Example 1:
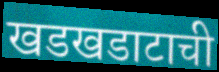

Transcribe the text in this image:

खडखडाटाची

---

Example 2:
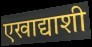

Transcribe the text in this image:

एखाद्याशी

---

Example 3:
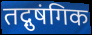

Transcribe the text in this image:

तद्नुषंगिक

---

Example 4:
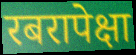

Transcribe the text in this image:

रबरापेक्षा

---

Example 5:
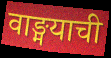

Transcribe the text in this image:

वाङ्मयाची